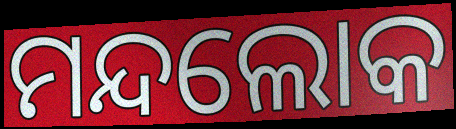
ମନ୍ଦଲୋକ